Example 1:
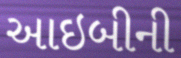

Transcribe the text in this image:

આઇબીની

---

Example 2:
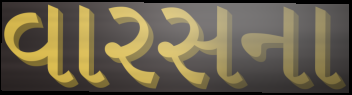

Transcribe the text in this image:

વારસના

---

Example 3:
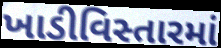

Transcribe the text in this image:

ખાડીવિસ્તારમાં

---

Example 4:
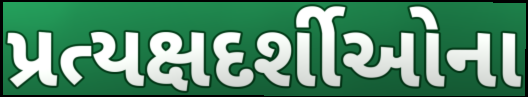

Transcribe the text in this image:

પ્રત્યક્ષદર્શીઓના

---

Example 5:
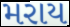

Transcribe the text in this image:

મરાય